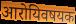
आरोयिवषयक